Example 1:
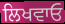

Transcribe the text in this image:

ਲਿਖਵਾਓ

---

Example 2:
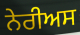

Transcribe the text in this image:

ਨੇਰੀਅਸ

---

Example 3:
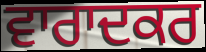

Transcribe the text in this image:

ਵਾਰਾਦਕਰ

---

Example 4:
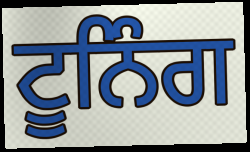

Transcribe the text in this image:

ਟੂਨਿੰਗ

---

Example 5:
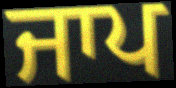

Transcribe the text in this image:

ਜਾਪ